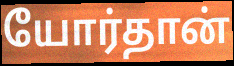
யோர்தான்